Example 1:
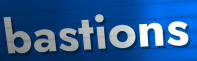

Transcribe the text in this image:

bastions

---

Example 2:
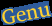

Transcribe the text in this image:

Genu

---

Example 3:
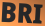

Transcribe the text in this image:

BRI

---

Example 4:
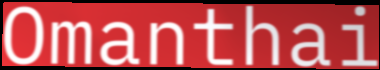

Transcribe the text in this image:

Omanthai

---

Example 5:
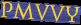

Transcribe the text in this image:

PMVVY